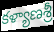
కళ్యాణశ్రీ